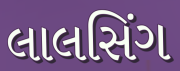
લાલસિંગ